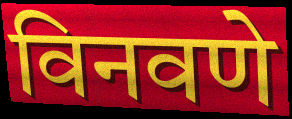
विनवणे